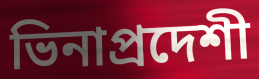
ভিনাপ্রদেশী